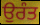
ਉਰੰਤ